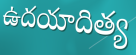
ఉదయాదిత్య